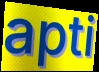
apti